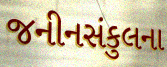
જનીનસંકુલના